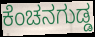
ಕೆಂಚನಗುಡ್ಡ